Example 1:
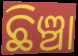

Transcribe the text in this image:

ଛିଞ୍ଚା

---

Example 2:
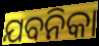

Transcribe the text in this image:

ଯବନିକା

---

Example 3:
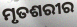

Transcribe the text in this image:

ମୃତଶରୀର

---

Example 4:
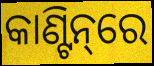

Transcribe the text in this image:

କାଣ୍ଟିନ୍‌ରେ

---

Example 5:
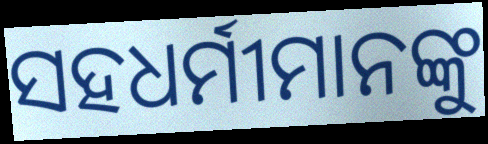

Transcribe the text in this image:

ସହଧର୍ମୀମାନଙ୍କୁ